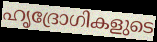
ഹൃദ്രോഗികളുടെ